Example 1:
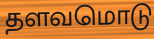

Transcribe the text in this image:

தளவமொடு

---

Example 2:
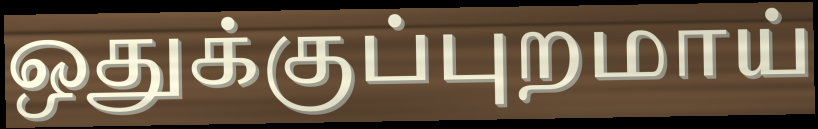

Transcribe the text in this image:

ஒதுக்குப்புறமாய்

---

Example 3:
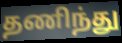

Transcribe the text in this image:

தணிந்து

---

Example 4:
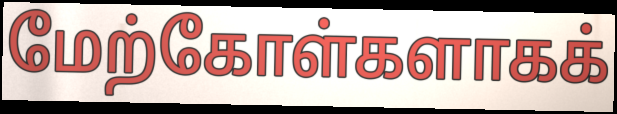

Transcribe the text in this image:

மேற்கோள்களாகக்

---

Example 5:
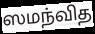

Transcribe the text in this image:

ஸமந்வித